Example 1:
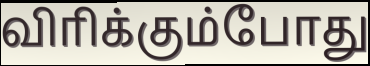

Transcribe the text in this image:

விரிக்கும்போது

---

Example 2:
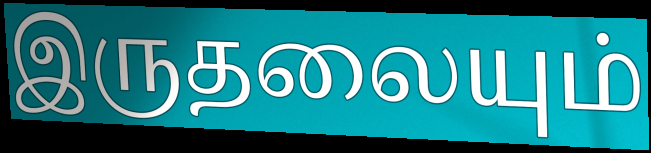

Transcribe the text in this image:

இருதலையும்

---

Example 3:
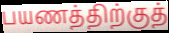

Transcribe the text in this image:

பயணத்திற்குத்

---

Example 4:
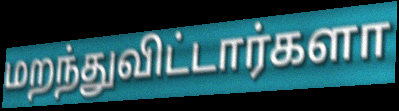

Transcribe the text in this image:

மறந்துவிட்டார்களா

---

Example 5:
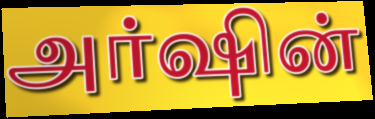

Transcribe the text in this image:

அர்ஷின்